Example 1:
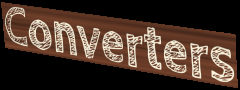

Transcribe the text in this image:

Converters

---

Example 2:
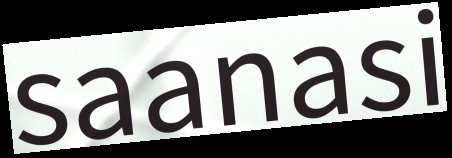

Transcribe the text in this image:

saanasi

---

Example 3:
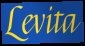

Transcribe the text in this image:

Levita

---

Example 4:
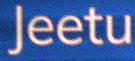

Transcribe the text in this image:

Jeetu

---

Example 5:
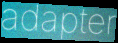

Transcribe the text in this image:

adapter